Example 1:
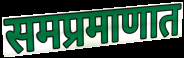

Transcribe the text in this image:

समप्रमाणात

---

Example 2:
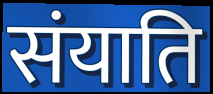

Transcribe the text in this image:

संयाति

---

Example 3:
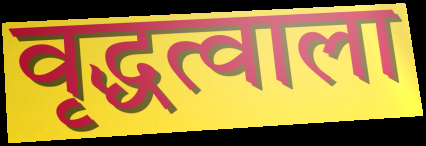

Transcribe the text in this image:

वृद्धत्वाला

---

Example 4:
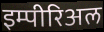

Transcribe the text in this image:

इम्पीरिअल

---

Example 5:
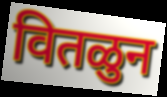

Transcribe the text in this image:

वितळुन